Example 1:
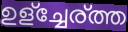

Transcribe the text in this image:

ഉള്ച്ചേര്ത്ത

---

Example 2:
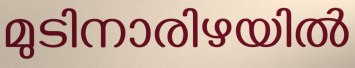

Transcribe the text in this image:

മുടിനാരിഴയിൽ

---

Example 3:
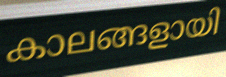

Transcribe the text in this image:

കാലങ്ങളായി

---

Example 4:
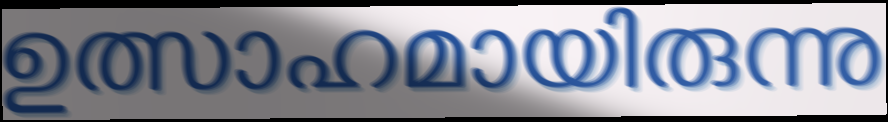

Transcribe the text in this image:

ഉത്സാഹമായിരുന്നു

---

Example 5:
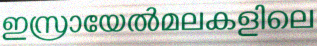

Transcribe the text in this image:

ഇസ്രായേൽമലകളിലെ